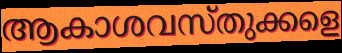
ആകാശവസ്തുക്കളെ